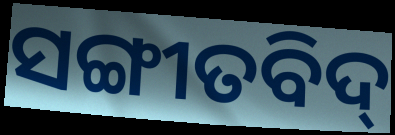
ସଙ୍ଗୀତବିଦ୍